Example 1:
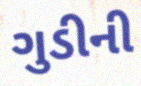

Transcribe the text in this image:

ગુડીની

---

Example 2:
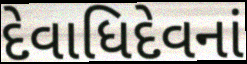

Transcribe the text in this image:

દેવાધિદેવનાં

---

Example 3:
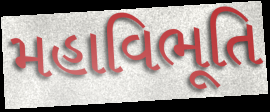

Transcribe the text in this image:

મહાવિભૂતિ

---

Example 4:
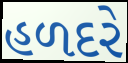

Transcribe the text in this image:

હળદરે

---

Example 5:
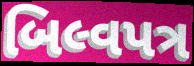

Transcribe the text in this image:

બિલ્વપત્ર